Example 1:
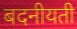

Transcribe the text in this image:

बदनीयती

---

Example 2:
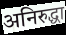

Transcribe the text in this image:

अनिरुद्धा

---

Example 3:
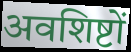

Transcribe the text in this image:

अवशिष्टों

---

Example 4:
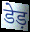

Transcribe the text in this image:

डेड़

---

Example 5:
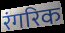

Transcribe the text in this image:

रंगरिक